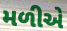
મળીએ